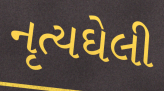
નૃત્યઘેલી